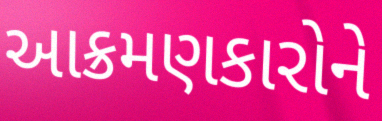
આક્રમણકારોને